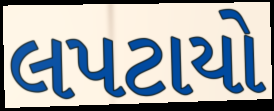
લપટાયો